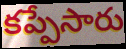
కప్పేసారు